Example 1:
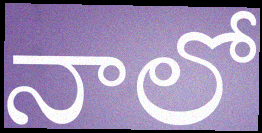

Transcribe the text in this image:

నాలో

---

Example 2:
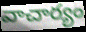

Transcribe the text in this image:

వాచార్యం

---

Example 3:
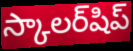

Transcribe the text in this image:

స్కాలర్‌షిప్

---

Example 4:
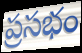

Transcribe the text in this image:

ప్రసభం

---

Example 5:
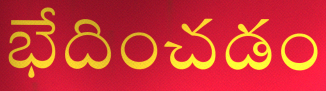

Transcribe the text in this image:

భేదించడం